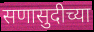
सणासुदीच्या